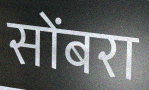
सोंबरा